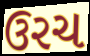
ઉરચ